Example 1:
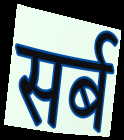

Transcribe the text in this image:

सर्ब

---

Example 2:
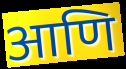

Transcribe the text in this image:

आणि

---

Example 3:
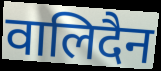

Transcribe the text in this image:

वालिदैन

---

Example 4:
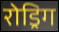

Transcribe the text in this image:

रोड्रिग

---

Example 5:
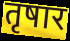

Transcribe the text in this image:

तृषार